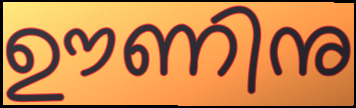
ഊണിനു